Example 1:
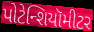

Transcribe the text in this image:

પોટેન્શિયૉમીટર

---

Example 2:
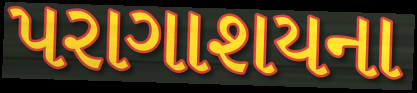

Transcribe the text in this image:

પરાગાશયના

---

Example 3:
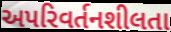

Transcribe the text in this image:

અપરિવર્તનશીલતા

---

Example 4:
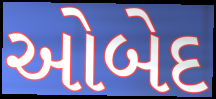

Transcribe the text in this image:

ઓબેદ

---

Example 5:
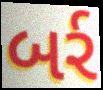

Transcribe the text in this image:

બર્ર